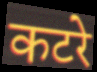
कटरे